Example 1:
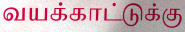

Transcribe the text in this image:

வயக்காட்டுக்கு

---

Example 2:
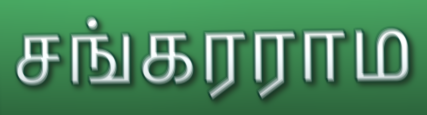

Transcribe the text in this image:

சங்கரராம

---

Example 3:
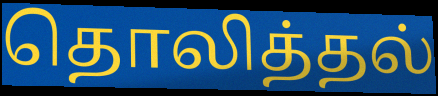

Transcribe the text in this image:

தொலித்தல்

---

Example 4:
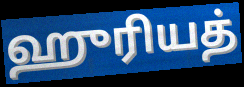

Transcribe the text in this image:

ஹுரியத்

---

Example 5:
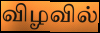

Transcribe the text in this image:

விழவில்